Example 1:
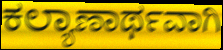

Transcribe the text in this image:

ಕಲ್ಯಾಣಾರ್ಥವಾಗಿ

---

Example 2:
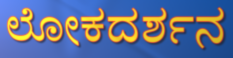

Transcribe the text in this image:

ಲೋಕದರ್ಶನ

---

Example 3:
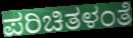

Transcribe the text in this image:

ಪರಿಚಿತಳಂತೆ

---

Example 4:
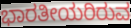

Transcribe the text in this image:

ಭಾರತೀಯರಿರುವ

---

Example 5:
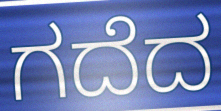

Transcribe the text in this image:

ಗದೆದ